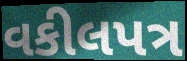
વકીલપત્ર